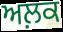
ਅਲ਼ਕ